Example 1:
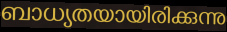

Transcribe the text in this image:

ബാധ്യതയായിരിക്കുന്നു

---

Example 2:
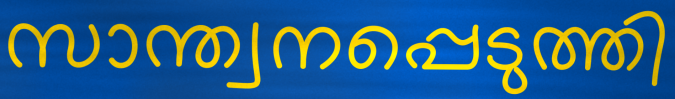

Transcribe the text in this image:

സാന്ത്വനപ്പെടുത്തി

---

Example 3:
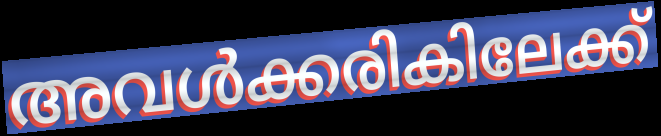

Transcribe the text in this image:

അവൾക്കരികിലേക്ക്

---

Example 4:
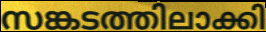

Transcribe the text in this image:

സങ്കടത്തിലാക്കി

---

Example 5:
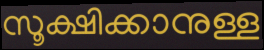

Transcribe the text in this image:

സൂക്ഷിക്കാനുള്ള